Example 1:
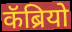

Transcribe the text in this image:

कॅब्रियो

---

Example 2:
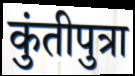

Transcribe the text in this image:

कुंतीपुत्रा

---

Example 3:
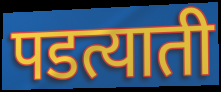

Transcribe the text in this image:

पडत्याती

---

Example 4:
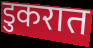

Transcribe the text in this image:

डुकरात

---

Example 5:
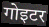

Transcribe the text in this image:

गोइटर